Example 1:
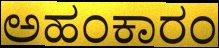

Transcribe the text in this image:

ಅಹಂಕಾರಂ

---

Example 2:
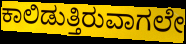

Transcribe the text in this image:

ಕಾಲಿಡುತ್ತಿರುವಾಗಲೇ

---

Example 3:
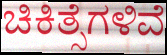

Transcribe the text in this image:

ಚಿಕಿತ್ಸೆಗಳಿವೆ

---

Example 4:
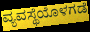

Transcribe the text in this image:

ವ್ಯವಸ್ಥೆಯೊಳಗಡೆ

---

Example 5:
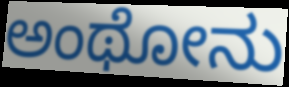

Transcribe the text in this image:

ಅಂಥೋನು